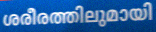
ശരീരത്തിലുമായി